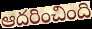
ఆదరించింది